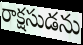
రాక్షసుడను